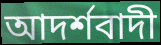
আদর্শবাদী